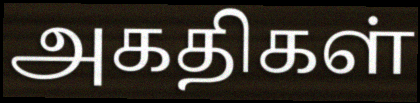
அகதிகள்